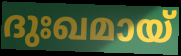
ദുഃഖമായ്